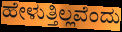
ಹೇಳುತ್ತಿಲ್ಲವೆಂದು